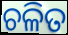
ଚଳିତ